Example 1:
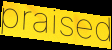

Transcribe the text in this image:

praised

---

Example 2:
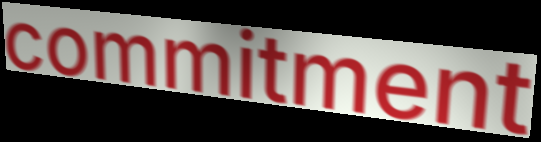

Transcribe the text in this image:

commitment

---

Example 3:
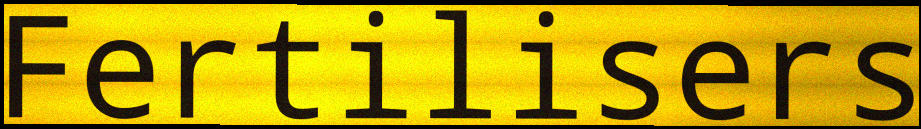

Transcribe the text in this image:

Fertilisers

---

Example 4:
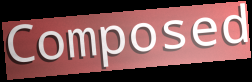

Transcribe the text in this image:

Composed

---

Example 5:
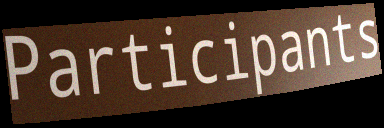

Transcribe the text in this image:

Participants